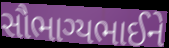
સૌભાગ્યભાઈને